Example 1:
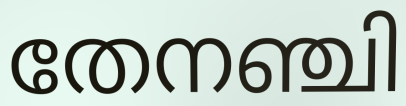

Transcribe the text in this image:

തേനഞ്ചി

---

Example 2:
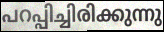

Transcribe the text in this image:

പറപ്പിച്ചിരിക്കുന്നു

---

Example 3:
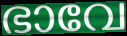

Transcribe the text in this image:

ഭാവേ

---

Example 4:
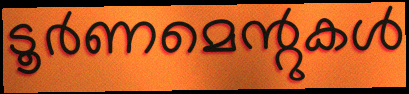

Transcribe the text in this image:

ടൂർണമെന്റുകൾ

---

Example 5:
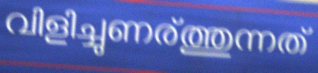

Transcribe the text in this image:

വിളിച്ചുണര്ത്തുന്നത്